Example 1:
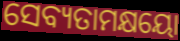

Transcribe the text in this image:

ସେବ୍ୟତାମକ୍ଷୟୋ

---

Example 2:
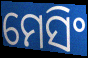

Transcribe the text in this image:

ମେସିଂ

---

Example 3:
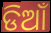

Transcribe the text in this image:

ଡିଆଁ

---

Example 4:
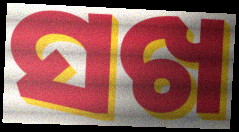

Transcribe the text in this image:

ସଖ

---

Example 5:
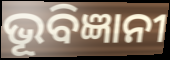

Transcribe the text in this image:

ଭୂବିଜ୍ଞାନୀ